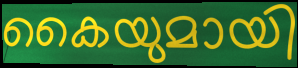
കൈയുമായി